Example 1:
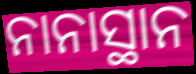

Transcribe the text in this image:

ନାନାସ୍ଥାନ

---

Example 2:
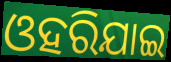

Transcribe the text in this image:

ଓହରିଯାଇ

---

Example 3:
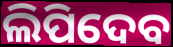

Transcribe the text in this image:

ଲିପିଦେବ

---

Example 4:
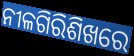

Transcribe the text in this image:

ନୀଳଗିରିଶିଖରେ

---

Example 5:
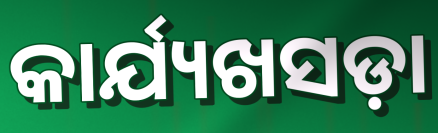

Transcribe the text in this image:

କାର୍ଯ୍ୟଖସଡ଼ା